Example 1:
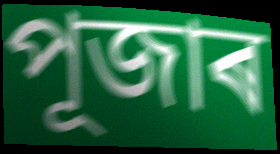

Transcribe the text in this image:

পূজাৰ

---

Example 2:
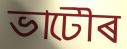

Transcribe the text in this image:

ভাটৌৰ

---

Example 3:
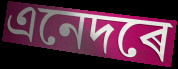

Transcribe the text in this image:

এনেদৰে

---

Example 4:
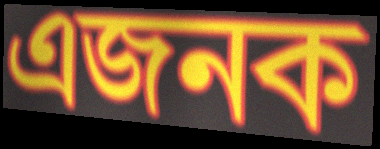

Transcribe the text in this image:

এজনক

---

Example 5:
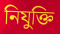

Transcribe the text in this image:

নিযুক্তি